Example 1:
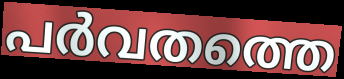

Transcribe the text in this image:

പർവതത്തെ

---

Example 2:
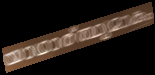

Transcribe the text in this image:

യാഥാര്ത്ഥ്യമാകും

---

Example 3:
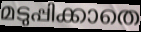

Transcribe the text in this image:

മടുപ്പിക്കാതെ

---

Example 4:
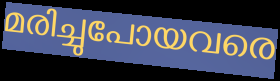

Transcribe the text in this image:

മരിച്ചുപോയവരെ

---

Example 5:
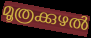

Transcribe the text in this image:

മൂത്രക്കുഴൽ